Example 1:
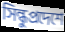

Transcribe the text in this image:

সিন্ধুপ্রদেশে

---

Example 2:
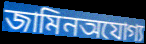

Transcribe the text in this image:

জামিনঅযোগ্য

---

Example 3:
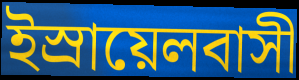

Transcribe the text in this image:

ইস্রায়েলবাসী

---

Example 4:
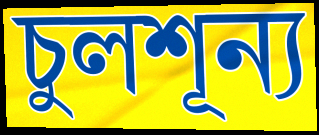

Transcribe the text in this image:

চুলশূন্য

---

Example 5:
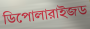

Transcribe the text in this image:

ডিপোলারাইজড